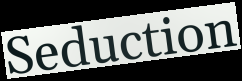
Seduction